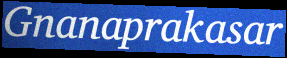
Gnanaprakasar